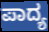
ಪಾದ್ಯ